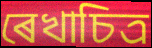
ৰেখাচিত্ৰ